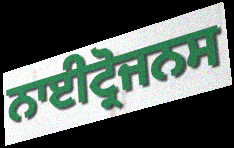
ਨਾਈਟ੍ਰੋਜਨਸ